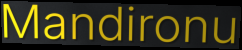
Mandironu